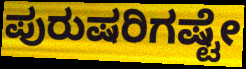
ಪುರುಷರಿಗಷ್ಟೇ